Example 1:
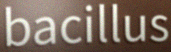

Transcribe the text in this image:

bacillus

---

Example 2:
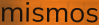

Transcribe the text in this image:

mismos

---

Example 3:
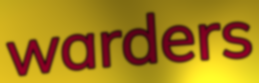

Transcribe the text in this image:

warders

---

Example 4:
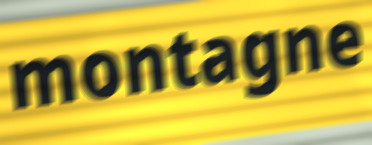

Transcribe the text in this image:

montagne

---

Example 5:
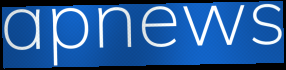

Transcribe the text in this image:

apnews